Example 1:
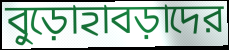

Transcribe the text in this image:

বুড়োহাবড়াদের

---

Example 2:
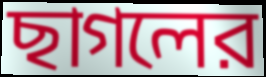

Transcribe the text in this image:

ছাগলের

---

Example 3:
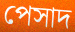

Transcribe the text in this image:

পেসাদ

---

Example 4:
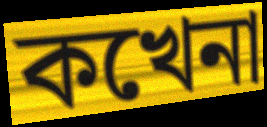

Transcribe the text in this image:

কখেনা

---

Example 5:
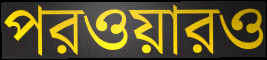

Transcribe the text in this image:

পরওয়ারও